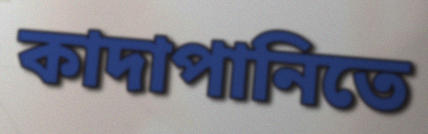
কাদাপানিতে